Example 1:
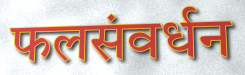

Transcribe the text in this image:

फलसंवर्धन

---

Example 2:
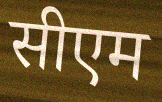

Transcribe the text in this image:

सीएम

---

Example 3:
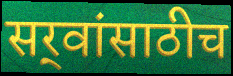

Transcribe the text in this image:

सर्वांसाठीच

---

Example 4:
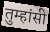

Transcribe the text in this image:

तुम्हांसी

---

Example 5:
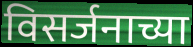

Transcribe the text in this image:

विसर्जनाच्या